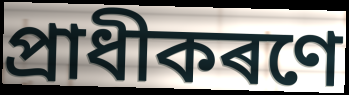
প্ৰাধীকৰণে